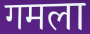
गमला